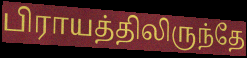
பிராயத்திலிருந்தே